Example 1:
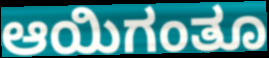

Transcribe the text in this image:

ಆಯಿಗಂತೂ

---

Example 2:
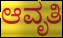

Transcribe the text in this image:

ಆವೃತಿ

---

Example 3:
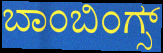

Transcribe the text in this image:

ಬಾಂಬಿಂಗ್ಸ್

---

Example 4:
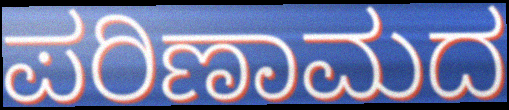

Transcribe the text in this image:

ಪರಿಣಾಮದ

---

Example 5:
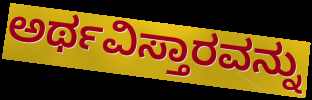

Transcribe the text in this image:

ಅರ್ಥವಿಸ್ತಾರವನ್ನು